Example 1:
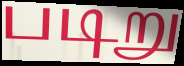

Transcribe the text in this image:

படிறு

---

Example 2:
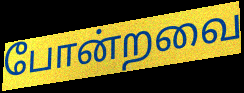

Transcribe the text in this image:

போன்றவை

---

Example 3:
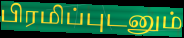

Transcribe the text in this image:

பிரமிப்புடனும்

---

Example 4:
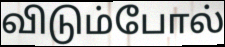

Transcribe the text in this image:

விடும்போல்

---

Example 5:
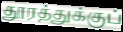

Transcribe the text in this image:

தூரத்துக்குப்